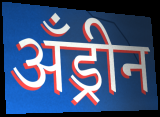
अँड्रीन